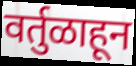
वर्तुळाहून